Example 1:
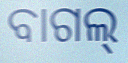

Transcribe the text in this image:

ବାଗଲ୍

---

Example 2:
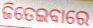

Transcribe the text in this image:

ଜିତେଇବାରେ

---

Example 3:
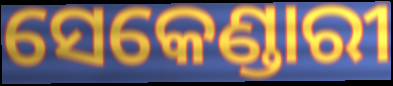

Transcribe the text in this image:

ସେକେଣ୍ଡାରୀ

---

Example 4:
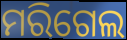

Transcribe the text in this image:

ମରିଗେଲ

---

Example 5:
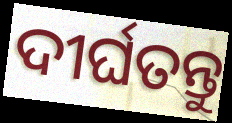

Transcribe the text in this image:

ଦୀର୍ଘତନ୍ତୁ